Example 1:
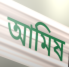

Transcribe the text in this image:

আমিষ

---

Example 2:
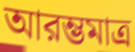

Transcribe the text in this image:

আরম্ভমাত্র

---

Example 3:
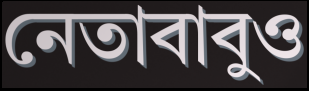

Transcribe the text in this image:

নেতাবাবুও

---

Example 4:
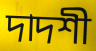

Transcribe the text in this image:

দাদশী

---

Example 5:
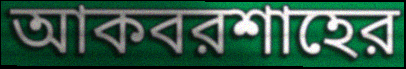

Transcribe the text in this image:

আকবরশাহের